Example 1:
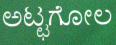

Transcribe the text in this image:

ಅಟ್ಟಗೋಲ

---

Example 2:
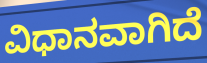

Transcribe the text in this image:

ವಿಧಾನವಾಗಿದೆ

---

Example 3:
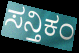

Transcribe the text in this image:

ಸನ್ತಿಕಂ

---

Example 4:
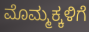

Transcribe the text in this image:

ಮೊಮ್ಮಕ್ಕಳಿಗೆ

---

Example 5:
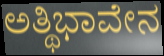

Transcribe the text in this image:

ಅತ್ಥಿಭಾವೇನ